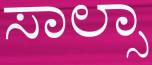
ಸಾಲ್ಸಾ